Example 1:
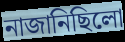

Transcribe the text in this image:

নাজানিছিলো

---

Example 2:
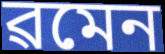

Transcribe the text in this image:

ৱমেন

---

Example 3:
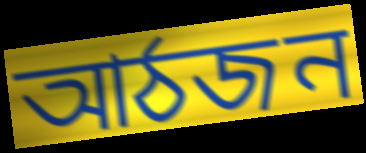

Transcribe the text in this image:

আঠজন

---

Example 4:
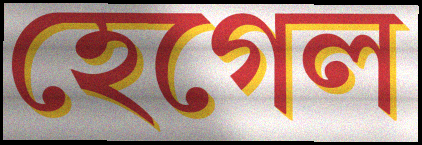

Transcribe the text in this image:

হেগেল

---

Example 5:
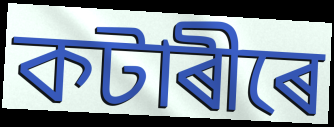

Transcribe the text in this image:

কটাৰীৰে